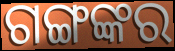
ଗଙ୍ଗଙ୍କର